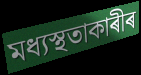
মধ্যস্থতাকাৰীৰ